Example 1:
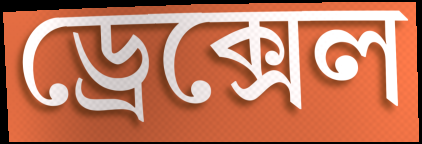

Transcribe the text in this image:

ড্রেক্সেল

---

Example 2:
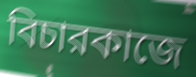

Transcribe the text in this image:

বিচারকাজে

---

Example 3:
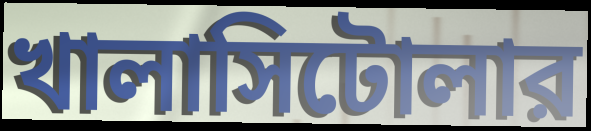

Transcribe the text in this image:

খালাসিটোলার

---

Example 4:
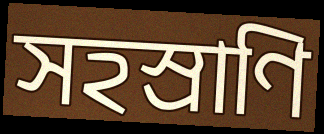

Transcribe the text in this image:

সহস্রাণি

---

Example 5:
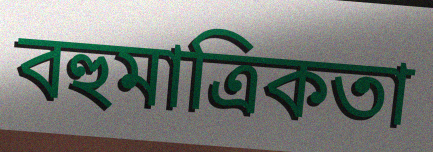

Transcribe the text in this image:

বহুমাত্রিকতা